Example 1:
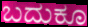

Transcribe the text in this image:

ಬದುಕೂ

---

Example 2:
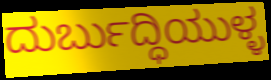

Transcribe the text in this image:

ದುರ್ಬುದ್ಧಿಯುಳ್ಳ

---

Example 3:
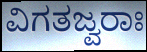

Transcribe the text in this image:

ವಿಗತಜ್ವರಾಃ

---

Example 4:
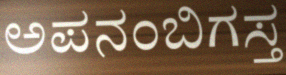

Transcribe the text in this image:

ಅಪನಂಬಿಗಸ್ತ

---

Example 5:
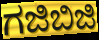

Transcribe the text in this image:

ಗಜಿಬಿಜಿ